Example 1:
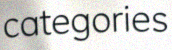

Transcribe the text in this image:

categories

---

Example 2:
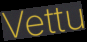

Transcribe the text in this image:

Vettu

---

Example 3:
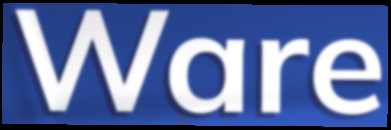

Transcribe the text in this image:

Ware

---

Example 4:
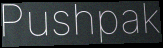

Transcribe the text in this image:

Pushpak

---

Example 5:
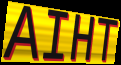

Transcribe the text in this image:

AIHT